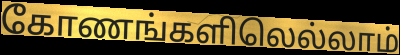
கோணங்களிலெல்லாம்